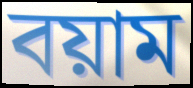
বয়াম